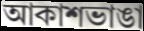
আকাশভাঙা